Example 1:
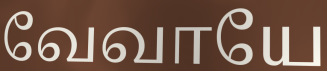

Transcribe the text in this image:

வேவாயே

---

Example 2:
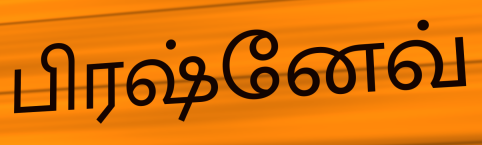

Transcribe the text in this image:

பிரஷ்னேவ்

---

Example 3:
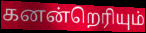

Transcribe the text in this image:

கனன்றெரியும்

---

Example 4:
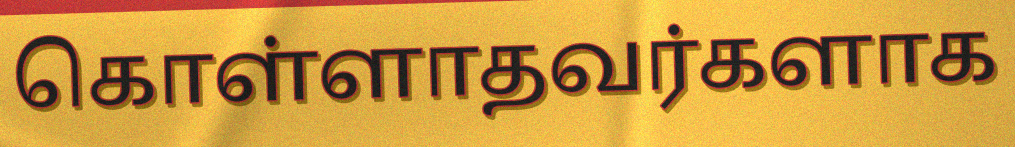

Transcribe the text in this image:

கொள்ளாதவர்களாக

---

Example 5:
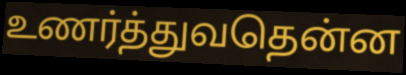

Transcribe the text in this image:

உணர்த்துவதென்ன